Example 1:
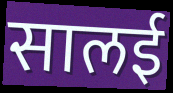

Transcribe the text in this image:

सालई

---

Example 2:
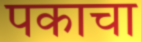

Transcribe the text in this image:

पकाचा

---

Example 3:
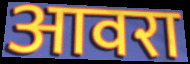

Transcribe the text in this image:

आवरा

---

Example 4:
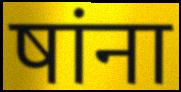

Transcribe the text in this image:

षांना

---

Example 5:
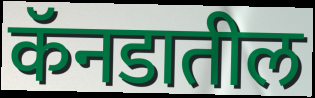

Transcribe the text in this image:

कॅनडातील